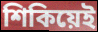
শিকিয়েই